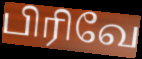
பிரிவே